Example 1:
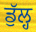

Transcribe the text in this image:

ਡੁੱਲ੍ਹ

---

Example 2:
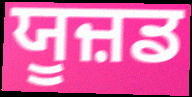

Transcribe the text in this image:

ਯੂਜ਼ਡ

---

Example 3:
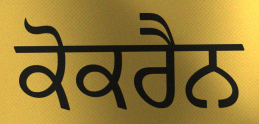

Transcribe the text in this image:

ਕੋਕਰੈਨ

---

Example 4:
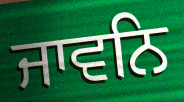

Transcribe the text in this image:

ਜਾਵਨਿ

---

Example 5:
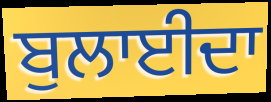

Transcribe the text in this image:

ਬੁਲਾਈਦਾ